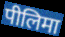
पीलिमा